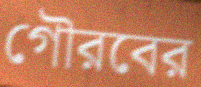
গৌরবের